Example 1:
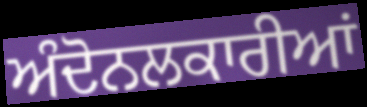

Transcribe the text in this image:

ਅੰਦੋਨਲਕਾਰੀਆਂ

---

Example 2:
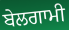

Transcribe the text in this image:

ਬੇਲਗਾਮੀ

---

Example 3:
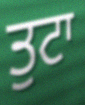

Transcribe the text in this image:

ਤੁਟਾ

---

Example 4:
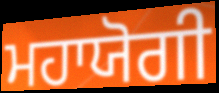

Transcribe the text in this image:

ਮਹਾਯੋਗੀ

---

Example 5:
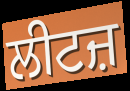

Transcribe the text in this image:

ਲੀਟਜ਼